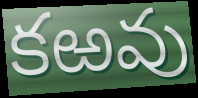
కఱవు